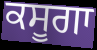
ਕਸੂਗਾ